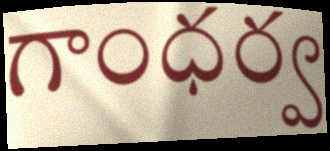
గాంధర్వ